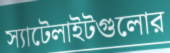
স্যাটেলাইটগুলোর